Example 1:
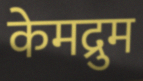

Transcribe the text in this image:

केमद्रुम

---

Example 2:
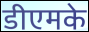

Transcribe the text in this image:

डीएमके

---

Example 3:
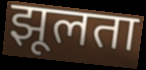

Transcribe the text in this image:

झूलता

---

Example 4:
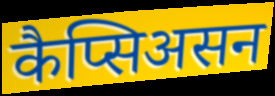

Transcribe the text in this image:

कैप्सिअसन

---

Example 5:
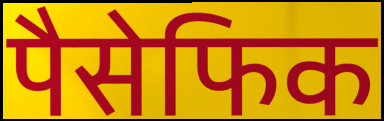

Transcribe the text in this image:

पैसेफिक